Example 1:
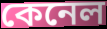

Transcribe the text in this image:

কেনেল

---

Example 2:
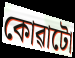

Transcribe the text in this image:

কোৱাটো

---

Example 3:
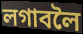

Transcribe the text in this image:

লগাবলৈ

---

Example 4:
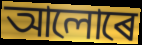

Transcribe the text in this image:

আলোৰে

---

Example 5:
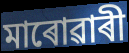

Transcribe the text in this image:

মাৰোৱাৰী